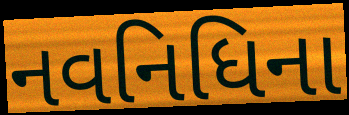
નવનિધિના